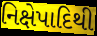
નિક્ષેપાદિથી